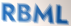
RBML